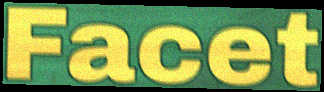
Facet